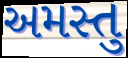
અમસ્તુ